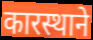
कारस्थाने